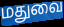
மதுவை